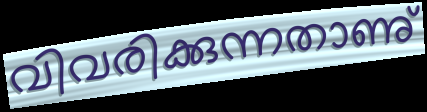
വിവരിക്കുന്നതാണു്